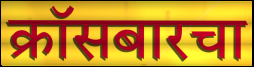
क्रॉसबारचा